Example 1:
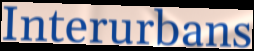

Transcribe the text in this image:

Interurbans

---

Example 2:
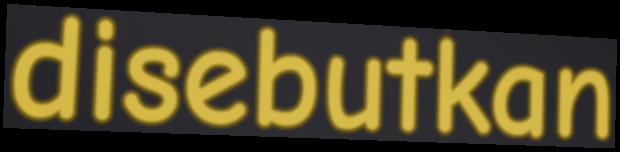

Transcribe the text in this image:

disebutkan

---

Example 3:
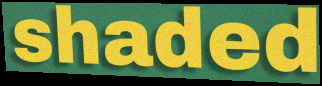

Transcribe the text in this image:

shaded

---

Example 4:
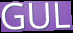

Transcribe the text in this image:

GUL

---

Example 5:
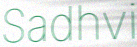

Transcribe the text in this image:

Sadhvi